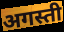
अगस्ती